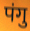
पंगु